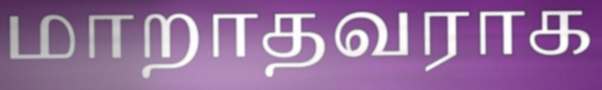
மாறாதவராக